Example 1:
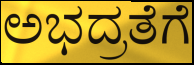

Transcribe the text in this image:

ಅಭದ್ರತೆಗೆ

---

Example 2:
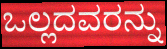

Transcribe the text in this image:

ಒಲ್ಲದವರನ್ನು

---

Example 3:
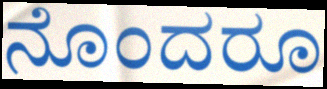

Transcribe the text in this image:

ನೊಂದರೂ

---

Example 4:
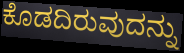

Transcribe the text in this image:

ಕೊಡದಿರುವುದನ್ನು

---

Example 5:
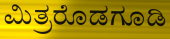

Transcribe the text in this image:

ಮಿತ್ರರೊಡಗೂಡಿ